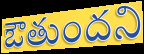
ఔతుందని